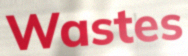
Wastes